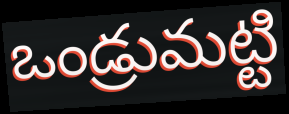
ఒండ్రుమట్టి